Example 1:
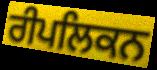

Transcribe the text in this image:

ਰੀਪਲਿਕਨ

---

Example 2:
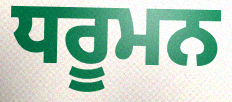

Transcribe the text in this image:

ਧਰੂਮਨ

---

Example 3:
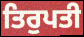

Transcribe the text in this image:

ਤਿਰੁਪਤੀ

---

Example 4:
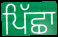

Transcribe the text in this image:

ਪਿੱਛਾ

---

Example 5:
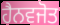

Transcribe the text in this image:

ਹੈਨਵਜੋਤ